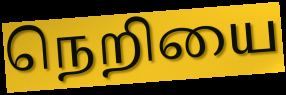
நெறியை